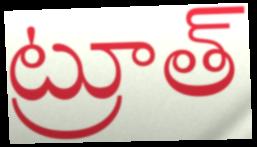
ట్రూత్